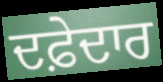
ਦਫ਼ੇਦਾਰ